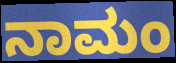
ನಾಮಂ